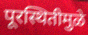
पूरस्थितीमुळे